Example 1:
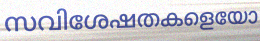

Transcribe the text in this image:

സവിശേഷതകളെയോ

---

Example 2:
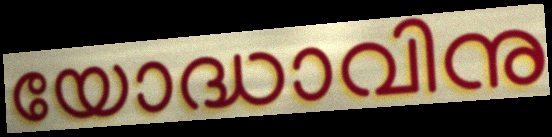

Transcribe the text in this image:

യോദ്ധാവിനു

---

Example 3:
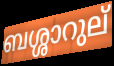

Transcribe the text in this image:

ബശ്ശാറുല്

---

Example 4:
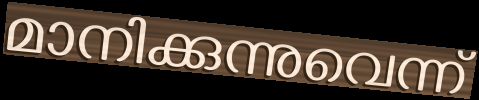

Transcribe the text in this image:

മാനിക്കുന്നുവെന്ന്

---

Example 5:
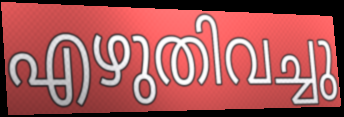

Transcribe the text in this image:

എഴുതിവച്ചു